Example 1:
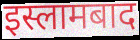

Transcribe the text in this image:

इस्लामबाद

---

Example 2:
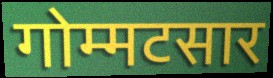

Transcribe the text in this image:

गोम्मटसार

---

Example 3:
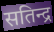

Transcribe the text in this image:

सतिन्द्र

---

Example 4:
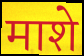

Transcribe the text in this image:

माशे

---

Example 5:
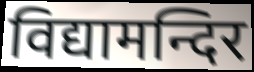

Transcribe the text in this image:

विद्यामन्दिर